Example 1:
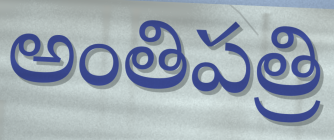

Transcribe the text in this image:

అంతిపత్రి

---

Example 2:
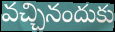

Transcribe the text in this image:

వచ్చినందుకు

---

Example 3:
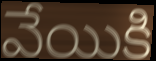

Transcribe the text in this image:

వేయికి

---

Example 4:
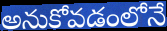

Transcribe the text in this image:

అనుకోవడంలోనే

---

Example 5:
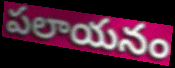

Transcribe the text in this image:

పలాయనం